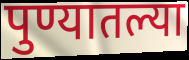
पुण्यातल्या